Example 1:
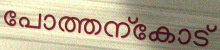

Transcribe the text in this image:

പോത്തന്കോട്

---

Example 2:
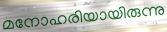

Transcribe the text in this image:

മനോഹരിയായിരുന്നു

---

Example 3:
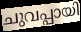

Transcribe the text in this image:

ചുവപ്പായി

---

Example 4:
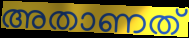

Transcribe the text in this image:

അതാണത്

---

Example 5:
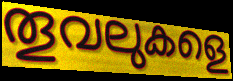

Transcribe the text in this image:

തൂവലുകളെ